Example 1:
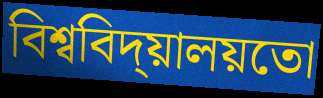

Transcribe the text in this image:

বিশ্ববিদ্য়ালয়তো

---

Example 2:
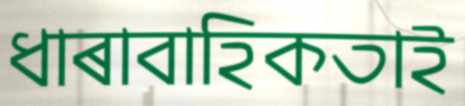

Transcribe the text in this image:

ধাৰাবাহিকতাই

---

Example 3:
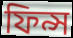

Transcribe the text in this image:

ফিন্স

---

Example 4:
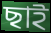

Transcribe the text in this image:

ছাই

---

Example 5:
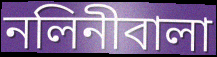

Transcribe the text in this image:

নলিনীবালা